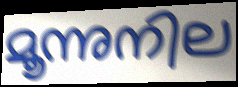
മൂന്നുനില